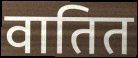
वातित